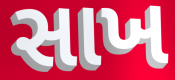
સાખ